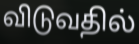
விடுவதில்